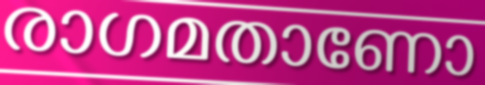
രാഗമതാണോ